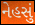
નેહસું